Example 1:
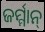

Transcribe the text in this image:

ଜର୍ମ୍ମାନ୍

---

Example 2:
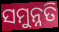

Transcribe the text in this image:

ସମୁନ୍ନତି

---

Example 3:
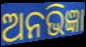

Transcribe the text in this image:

ଅନଭିଜ୍ଞା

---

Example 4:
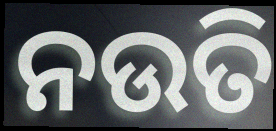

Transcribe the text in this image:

ନଉତି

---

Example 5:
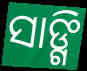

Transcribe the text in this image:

ସାଙ୍ଗି